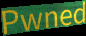
Pwned